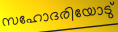
സഹോദരിയോടു്